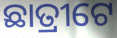
ଛାତ୍ରୀଟେ